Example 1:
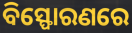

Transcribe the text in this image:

ବିସ୍ଫୋରଣରେ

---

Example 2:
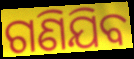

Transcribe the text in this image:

ଗଣିଯିବ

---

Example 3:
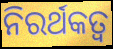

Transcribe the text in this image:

ନିରର୍ଥକତ୍ୱ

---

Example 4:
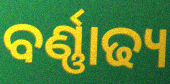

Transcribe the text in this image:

ବର୍ଣ୍ଣାଢ୍ୟ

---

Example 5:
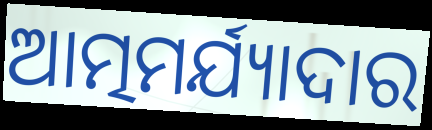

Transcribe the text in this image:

ଆତ୍ମମର୍ଯ୍ୟାଦାର